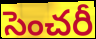
సెంచరీ